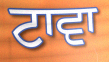
ਟਾਵਾ